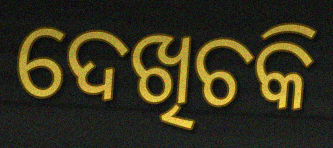
ଦେଖିଚକି